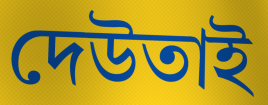
দেউতাই